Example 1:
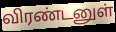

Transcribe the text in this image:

விரண்டனுள்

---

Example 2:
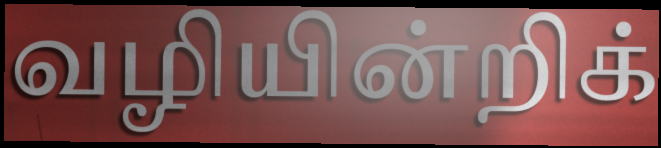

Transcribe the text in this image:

வழியின்றிக்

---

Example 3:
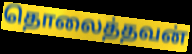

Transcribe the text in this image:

தொலைத்தவன்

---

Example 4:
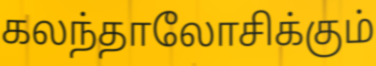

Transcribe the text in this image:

கலந்தாலோசிக்கும்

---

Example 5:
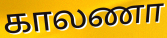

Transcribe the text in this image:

காலணா